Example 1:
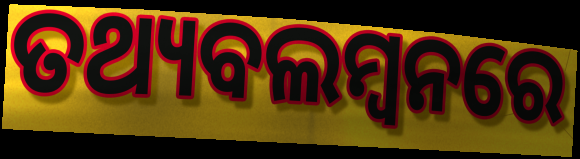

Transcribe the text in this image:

ତଥ୍ୟବଲମ୍ବନରେ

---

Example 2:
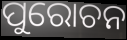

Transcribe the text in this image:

ପୁରୋଚନ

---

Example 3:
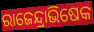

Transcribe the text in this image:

ରାଜେନ୍ଦ୍ରାଭିଷେକ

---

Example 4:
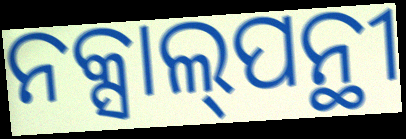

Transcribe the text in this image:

ନକ୍ସାଲ୍‌ପନ୍ଥୀ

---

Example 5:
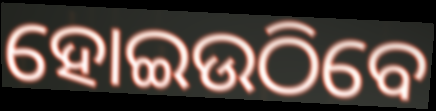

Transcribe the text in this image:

ହୋଇଉଠିବେ